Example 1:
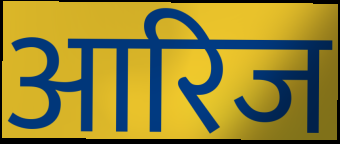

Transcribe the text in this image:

आरिज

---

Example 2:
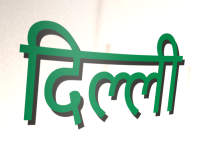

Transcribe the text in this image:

दिल्ली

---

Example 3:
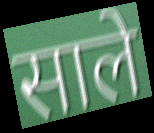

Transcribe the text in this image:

साले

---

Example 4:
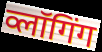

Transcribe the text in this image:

व्लॉगिंग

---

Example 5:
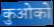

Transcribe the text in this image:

कुओको